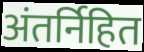
अंतर्निहित